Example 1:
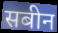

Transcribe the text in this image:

सबीन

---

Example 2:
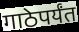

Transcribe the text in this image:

गाठेपर्यंत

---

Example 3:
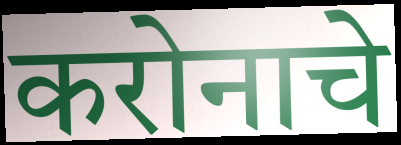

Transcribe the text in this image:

करोनाचे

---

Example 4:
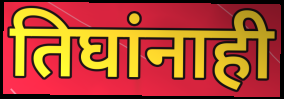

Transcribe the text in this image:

तिघांनाही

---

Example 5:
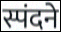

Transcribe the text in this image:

स्पंदने